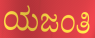
ಯಜಂತಿ